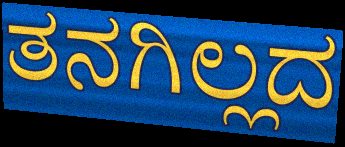
ತನಗಿಲ್ಲದ